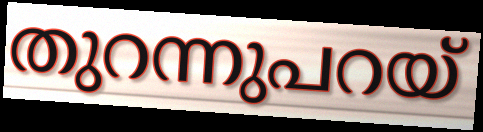
തുറന്നുപറയ്